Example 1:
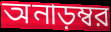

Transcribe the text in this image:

অনাড়ম্বর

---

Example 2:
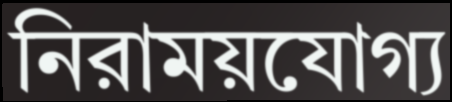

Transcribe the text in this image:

নিরাময়যোগ্য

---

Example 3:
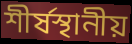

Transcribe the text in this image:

শীর্ষস্থানীয়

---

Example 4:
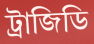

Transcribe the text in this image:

ট্রাজিডি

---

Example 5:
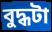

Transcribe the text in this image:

বুদ্ধটা